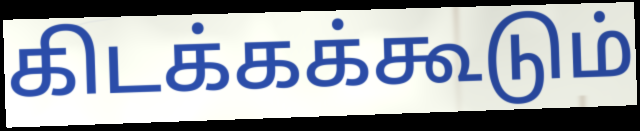
கிடக்கக்கூடும்